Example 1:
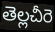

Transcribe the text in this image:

తెల్లచీరె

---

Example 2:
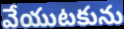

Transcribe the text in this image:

వేయుటకును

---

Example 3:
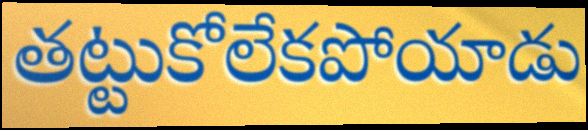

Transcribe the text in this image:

తట్టుకోలేకపోయాడు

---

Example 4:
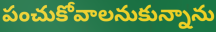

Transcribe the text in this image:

పంచుకోవాలనుకున్నాను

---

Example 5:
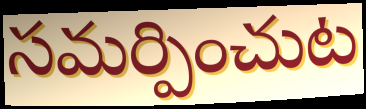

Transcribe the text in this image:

సమర్పించుట